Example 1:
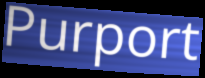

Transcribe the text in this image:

Purport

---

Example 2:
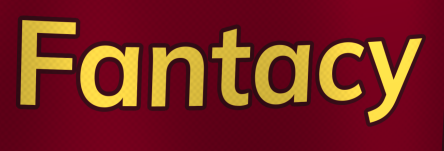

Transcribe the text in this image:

Fantacy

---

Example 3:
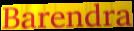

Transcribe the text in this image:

Barendra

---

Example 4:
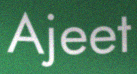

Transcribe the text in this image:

Ajeet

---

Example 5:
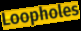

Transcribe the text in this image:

Loopholes